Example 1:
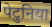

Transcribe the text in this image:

पेटुनिया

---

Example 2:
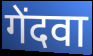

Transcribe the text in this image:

गेंदवा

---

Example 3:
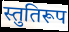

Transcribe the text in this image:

स्तुतिरूप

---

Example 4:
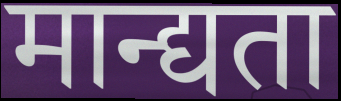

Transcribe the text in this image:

मान्द्यता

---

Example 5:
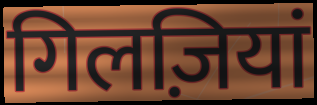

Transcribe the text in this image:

गिलज़ियां